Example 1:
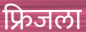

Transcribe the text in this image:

फ्रिजला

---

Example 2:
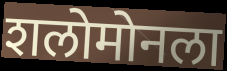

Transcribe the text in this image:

शलोमोनला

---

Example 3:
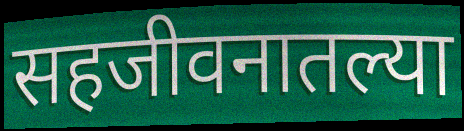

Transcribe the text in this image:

सहजीवनातल्या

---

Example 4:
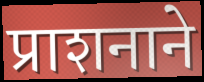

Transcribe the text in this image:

प्राशनाने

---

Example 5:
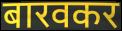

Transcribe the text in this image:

बारवकर